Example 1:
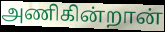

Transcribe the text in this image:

அணிகின்றான்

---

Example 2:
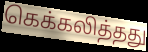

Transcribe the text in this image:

கெக்கலித்தது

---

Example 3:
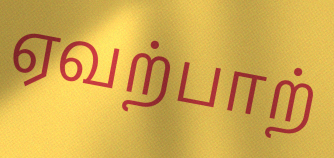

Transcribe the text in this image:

ஏவற்பாற்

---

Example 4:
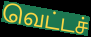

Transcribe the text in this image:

வெட்டச்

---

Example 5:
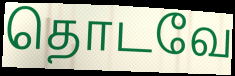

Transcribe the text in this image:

தொடவே